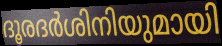
ദൂരദർശിനിയുമായി